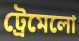
ট্রেমেলো